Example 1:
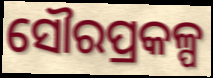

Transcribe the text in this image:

ସୌରପ୍ରକଳ୍ପ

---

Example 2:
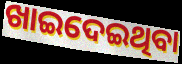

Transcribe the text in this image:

ଖାଇଦେଇଥିବା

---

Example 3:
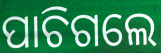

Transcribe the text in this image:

ପାଚିଗଲେ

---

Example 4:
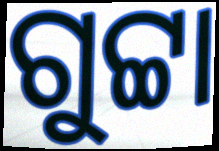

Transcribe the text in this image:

ଗୁଟ୍ଟା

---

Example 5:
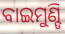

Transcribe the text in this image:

ବାଇମୁଣ୍ଡି